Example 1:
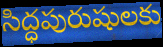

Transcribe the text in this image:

సిద్ధపురుషులకు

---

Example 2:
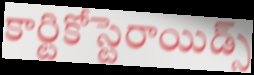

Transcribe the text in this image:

కార్టికోస్టెరాయిడ్స్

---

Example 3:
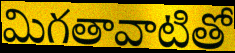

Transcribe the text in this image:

మిగతావాటితో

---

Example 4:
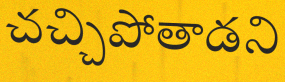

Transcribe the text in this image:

చచ్చిపోతాడని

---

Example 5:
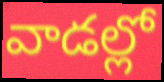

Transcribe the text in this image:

వాడల్లో